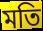
মতি